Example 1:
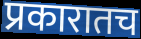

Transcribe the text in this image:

प्रकारातच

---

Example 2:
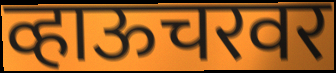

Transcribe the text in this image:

व्हाऊचरवर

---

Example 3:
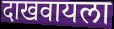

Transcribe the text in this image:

दाखवायला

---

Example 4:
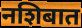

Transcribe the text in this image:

नशिबात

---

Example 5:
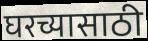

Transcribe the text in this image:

घरच्यासाठी